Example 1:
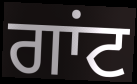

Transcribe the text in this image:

ਗਾਂਟ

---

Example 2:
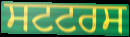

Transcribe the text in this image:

ਸਟਟਰਸ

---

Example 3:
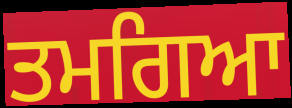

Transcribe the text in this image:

ਤਮਗਿਆ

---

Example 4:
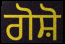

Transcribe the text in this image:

ਗੋਸ਼ੋ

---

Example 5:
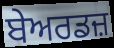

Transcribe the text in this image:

ਬੇਅਰਡਜ਼